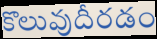
కొలువుదీరడం